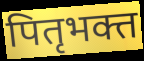
पितृभक्त